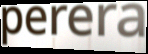
perera